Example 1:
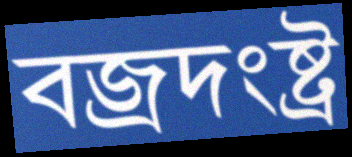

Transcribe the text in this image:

বজ্রদংষ্ট্র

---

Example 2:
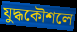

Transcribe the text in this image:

যুদ্ধকৌশলে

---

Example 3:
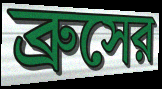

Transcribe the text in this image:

ব্রুসের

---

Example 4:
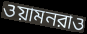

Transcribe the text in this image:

ওয়ামনরাও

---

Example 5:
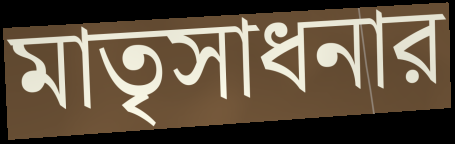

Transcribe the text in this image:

মাতৃসাধনার